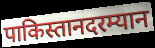
पाकिस्तानदरम्यान